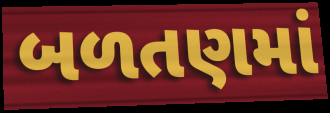
બળતણમાં